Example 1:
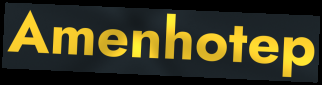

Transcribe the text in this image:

Amenhotep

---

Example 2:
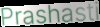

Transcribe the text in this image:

Prashasti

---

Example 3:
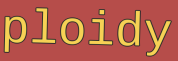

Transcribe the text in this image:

ploidy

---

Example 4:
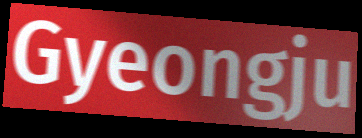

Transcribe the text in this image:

Gyeongju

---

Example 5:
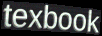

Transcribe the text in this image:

texbook